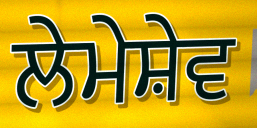
ਲੇਮੇਸ਼ੇਵ